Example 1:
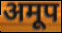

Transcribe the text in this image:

अमूप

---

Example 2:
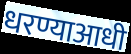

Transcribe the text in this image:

धरण्याआधी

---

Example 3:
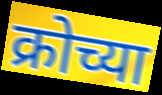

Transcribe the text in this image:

क्रोच्या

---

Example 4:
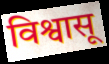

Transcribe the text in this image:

विश्वासू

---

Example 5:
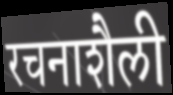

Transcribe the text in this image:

रचनाशैली